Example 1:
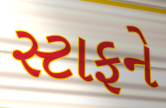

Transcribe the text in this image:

સ્ટાફને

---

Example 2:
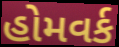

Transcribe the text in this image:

હોમવર્ક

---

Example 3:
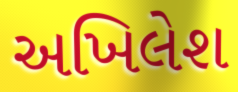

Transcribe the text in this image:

અખિલેશ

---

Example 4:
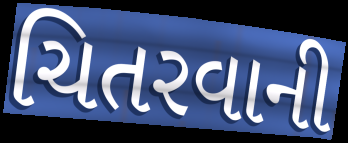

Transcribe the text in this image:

ચિતરવાની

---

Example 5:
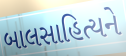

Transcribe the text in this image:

બાલસાહિત્યને